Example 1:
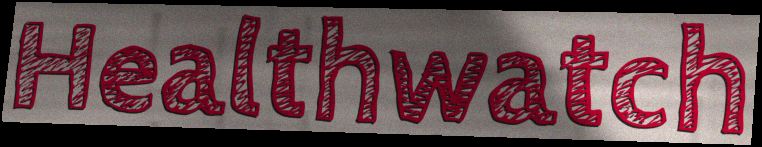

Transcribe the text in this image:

Healthwatch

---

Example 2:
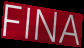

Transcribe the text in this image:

FINA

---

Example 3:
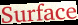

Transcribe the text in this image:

Surface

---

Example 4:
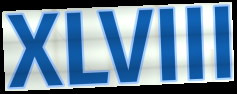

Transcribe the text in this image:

XLVIII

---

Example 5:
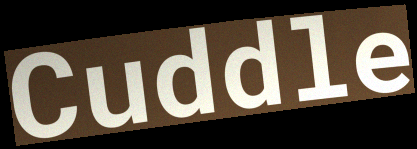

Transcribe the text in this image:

Cuddle